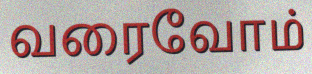
வரைவோம்